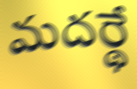
మదర్థే